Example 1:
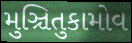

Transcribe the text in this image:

મુઞ્ચિતુકામોવ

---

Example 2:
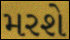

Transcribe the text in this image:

મરશે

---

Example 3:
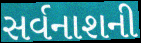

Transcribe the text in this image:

સર્વનાશની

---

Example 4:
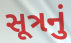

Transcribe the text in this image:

સૂત્રનું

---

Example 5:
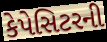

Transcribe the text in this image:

કેપેસિટરની